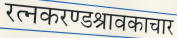
रत्नकरण्डश्रावकाचार